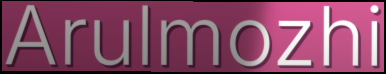
Arulmozhi